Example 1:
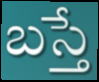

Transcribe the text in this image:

బస్తే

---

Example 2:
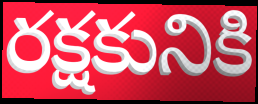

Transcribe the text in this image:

రక్షకునికి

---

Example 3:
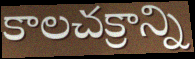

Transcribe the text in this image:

కాలచక్రాన్ని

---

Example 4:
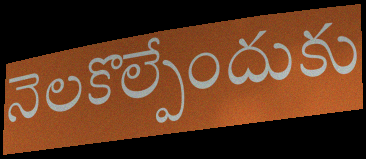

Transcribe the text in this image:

నెలకొల్పేందుకు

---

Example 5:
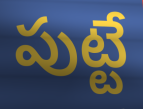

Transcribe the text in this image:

పుట్టే